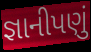
જ્ઞાનીપણું